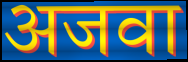
अजवा